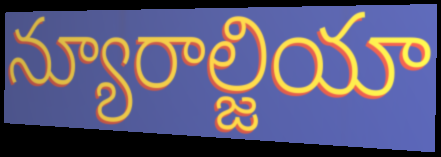
న్యూరాల్జియా